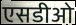
एसडीओ